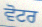
ਵੋਟਰ